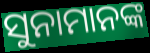
ସୁନାମାନଙ୍କ